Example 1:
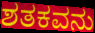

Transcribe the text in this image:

ಶತಕವನು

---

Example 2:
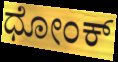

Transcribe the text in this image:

ಧೋಂಕ್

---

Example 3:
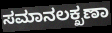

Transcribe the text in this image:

ಸಮಾನಲಕ್ಖಣಾ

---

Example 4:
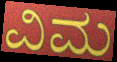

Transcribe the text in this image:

ವಿಮ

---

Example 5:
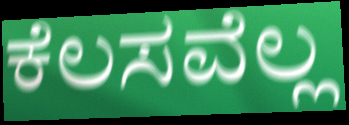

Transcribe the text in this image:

ಕೆಲಸವೆಲ್ಲ